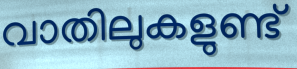
വാതിലുകളുണ്ട്